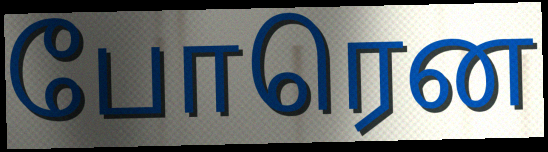
போரென